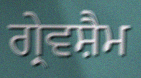
ਗ੍ਰੇਵਸ਼ੈਮ